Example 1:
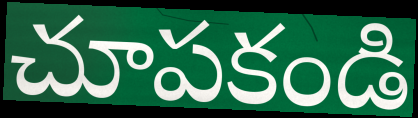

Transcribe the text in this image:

చూపకండి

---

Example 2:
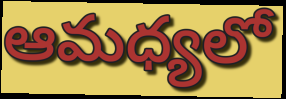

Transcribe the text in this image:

ఆమధ్యలో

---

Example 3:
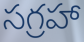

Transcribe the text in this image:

సగ్రహా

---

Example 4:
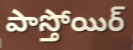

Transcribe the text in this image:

పాస్తోయిర్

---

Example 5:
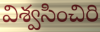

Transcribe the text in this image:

విశ్వసించిరి